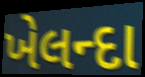
ખેલન્દા